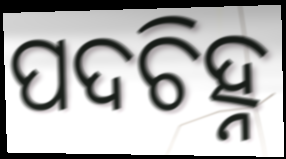
ପଦଚିହ୍ନ